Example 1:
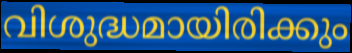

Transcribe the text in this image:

വിശുദ്ധമായിരിക്കും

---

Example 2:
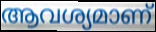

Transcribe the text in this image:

ആവശ്യമാണ്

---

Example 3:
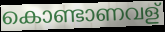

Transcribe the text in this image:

കൊണ്ടാണവള്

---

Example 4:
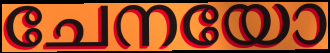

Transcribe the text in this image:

ചേനയോ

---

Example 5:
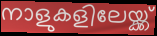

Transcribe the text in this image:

നാളുകളിലേയ്ക്ക്